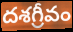
దశగ్రీవం